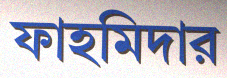
ফাহমিদার